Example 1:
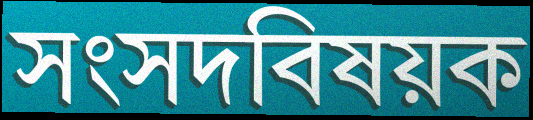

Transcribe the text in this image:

সংসদবিষয়ক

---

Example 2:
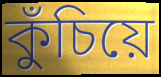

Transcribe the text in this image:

কুঁচিয়ে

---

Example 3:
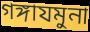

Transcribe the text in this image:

গঙ্গাযমুনা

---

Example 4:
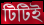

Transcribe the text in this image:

টিটিই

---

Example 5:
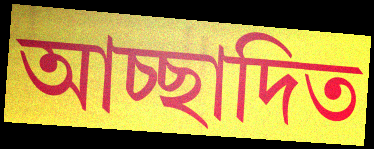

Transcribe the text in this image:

আচ্ছাদিত